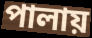
পালায়